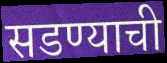
सडण्याची